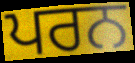
ਪਰਨ